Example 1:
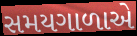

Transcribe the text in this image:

સમયગાળાએ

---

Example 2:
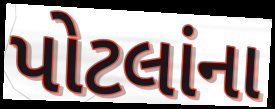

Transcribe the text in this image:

પોટલાંના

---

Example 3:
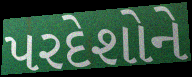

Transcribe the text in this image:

પરદેશોને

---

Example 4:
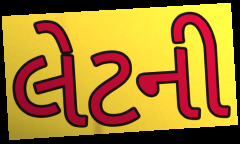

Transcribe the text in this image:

લેટની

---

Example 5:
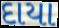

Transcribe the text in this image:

દાયા